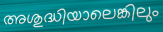
അശുദ്ധിയാലെങ്കിലും